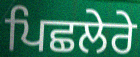
ਪਿਛਲੇਰੇ